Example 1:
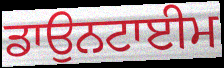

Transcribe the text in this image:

ਡਾਉਨਟਾਈਮ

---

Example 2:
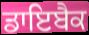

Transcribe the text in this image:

ਡਾਇਬੈਕ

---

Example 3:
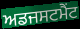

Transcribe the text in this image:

ਅਡਜਸਟਮੈਂਟ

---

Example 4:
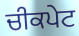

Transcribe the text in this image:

ਚੀਕਪੇਟ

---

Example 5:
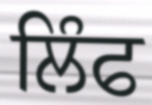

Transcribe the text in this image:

ਲਿੰਫ